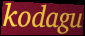
kodagu